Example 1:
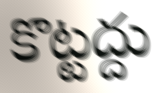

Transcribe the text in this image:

కొట్టద్దు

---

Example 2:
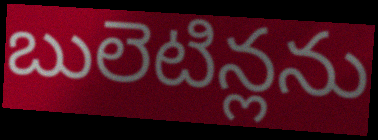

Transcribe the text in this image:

బులెటిన్లను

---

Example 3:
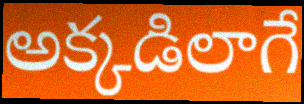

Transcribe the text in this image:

అక్కడిలాగే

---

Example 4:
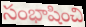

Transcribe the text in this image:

సంభాషించి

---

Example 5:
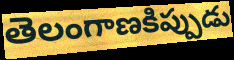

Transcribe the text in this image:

తెలంగాణకిప్పుడు